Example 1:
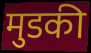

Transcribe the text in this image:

मुडकी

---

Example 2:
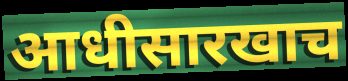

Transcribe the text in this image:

आधीसारखाच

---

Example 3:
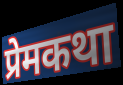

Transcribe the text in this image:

प्रेमकथा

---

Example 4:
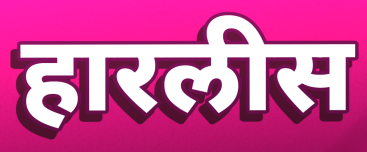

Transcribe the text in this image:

हारलीस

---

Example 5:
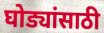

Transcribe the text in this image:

घोड्यांसाठी